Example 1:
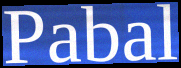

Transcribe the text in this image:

Pabal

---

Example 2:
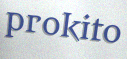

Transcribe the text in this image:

prokito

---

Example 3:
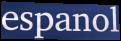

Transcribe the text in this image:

espanol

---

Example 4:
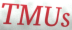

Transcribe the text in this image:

TMUs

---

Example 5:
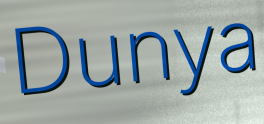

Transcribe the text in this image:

Dunya